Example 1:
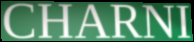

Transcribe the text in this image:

CHARNI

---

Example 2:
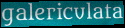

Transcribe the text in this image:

galericulata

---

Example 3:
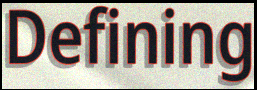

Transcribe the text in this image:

Defining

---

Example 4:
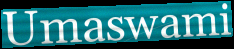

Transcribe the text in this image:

Umaswami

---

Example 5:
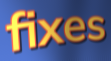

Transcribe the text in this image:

fixes